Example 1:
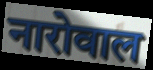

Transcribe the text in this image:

नारोवाल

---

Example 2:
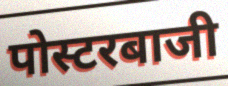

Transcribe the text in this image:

पोस्टरबाजी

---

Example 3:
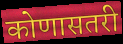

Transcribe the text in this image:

कोणासतरी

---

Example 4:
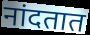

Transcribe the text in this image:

नांदतात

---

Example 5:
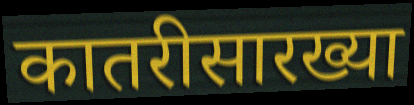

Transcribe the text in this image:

कातरीसारख्या